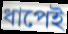
ধাপেই